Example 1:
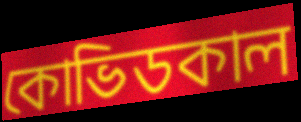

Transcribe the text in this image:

কোভিডকাল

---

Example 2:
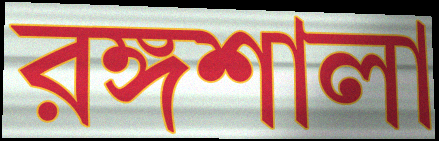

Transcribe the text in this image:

রঙ্গশালা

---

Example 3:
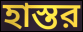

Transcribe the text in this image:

হাস্তর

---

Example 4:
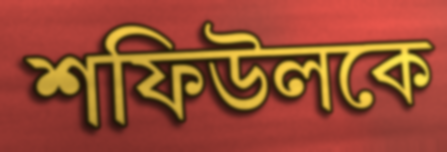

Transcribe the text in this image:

শফিউলকে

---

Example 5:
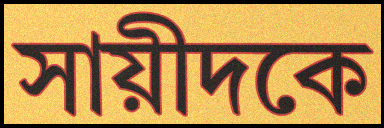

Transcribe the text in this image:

সায়ীদকে